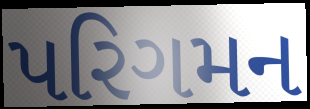
પરિગમન